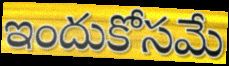
ఇందుకోసమే